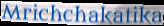
Mrichchakatika